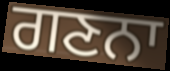
ਗਣਨਾ